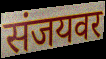
संजयवर